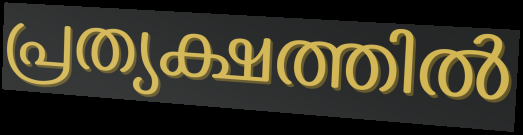
പ്രത്യക്ഷത്തിൽ